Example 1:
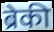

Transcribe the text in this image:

ब्रेकी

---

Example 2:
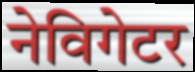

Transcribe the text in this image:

नेविगेटर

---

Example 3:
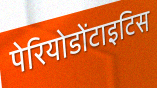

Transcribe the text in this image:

पेरियोडोंटाइटिस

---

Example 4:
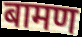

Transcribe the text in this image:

बामण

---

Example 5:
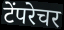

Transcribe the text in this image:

टेंपरेचर